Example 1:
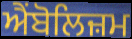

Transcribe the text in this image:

ਐਂਬੋਲਿਜ਼ਮ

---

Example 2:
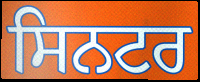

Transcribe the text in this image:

ਸਿਨਟਰ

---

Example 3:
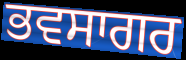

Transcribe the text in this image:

ਭਵਸਾਗਰ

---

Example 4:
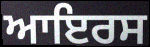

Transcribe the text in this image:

ਆਇਰਸ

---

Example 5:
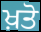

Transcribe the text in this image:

ਖ਼ਤੋ